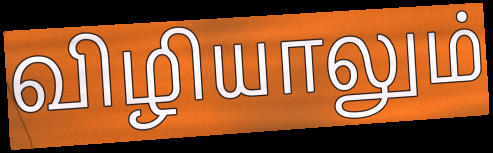
விழியாலும்